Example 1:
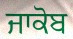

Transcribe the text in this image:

ਜਾਕੋਬ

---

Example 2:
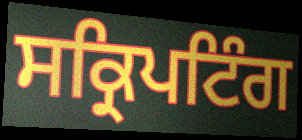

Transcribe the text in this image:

ਸਕ੍ਰਿਪਟਿੰਗ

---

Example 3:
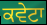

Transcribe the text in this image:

ਕਵੇਟਾ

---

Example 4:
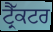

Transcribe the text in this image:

ਟ੍ਰੈੱਕਟਰ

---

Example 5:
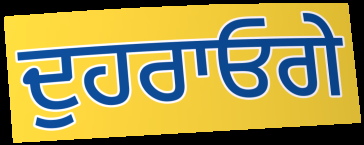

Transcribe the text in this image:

ਦੁਹਰਾਓਗੇ